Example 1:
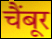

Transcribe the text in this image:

चैंबूर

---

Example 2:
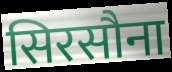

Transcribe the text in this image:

सिरसौना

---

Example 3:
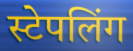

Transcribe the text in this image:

स्टेपलिंग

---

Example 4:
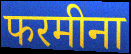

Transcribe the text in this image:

फरमीना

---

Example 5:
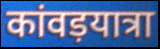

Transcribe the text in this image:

कांवड़यात्रा